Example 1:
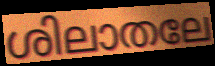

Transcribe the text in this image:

ശിലാതലേ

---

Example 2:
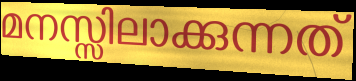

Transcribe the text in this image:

മനസ്സിലാക്കുന്നത്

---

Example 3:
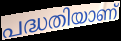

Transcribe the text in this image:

പദ്ധതിയാണ്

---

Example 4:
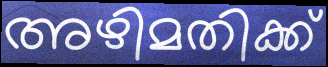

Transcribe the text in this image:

അഴിമതിക്ക്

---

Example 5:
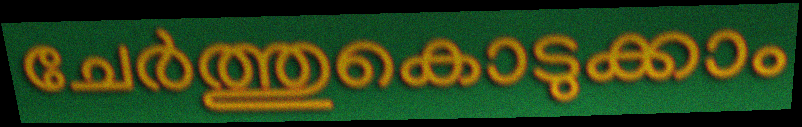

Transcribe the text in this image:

ചേർത്തുകൊടുക്കാം